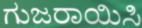
ಗುಜರಾಯಿಸಿ